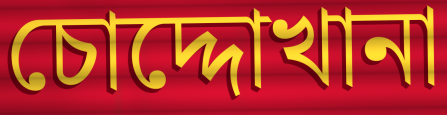
চোদ্দোখানা